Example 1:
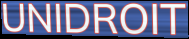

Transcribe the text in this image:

UNIDROIT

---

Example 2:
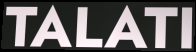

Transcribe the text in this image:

TALATI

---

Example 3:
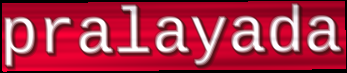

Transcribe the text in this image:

pralayada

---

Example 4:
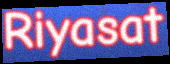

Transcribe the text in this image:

Riyasat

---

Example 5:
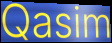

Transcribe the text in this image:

Qasim